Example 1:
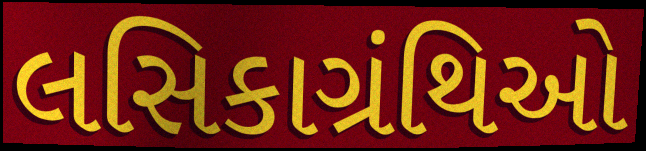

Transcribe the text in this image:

લસિકાગ્રંથિઓ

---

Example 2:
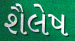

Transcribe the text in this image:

શૈલેષ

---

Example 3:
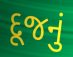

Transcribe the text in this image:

દૂજનું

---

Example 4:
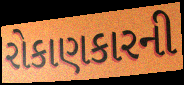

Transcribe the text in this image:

રોકાણકારની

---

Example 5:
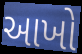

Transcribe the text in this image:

આખો